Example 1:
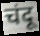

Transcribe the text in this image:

चंदू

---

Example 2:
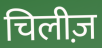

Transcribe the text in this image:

चिलीज़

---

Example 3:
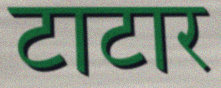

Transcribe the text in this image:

टाटार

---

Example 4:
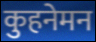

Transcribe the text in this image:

कुहनेमन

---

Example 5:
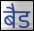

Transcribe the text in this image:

बैड